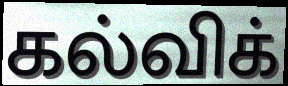
கல்விக்